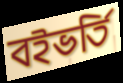
বইভর্তি